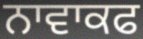
ਨਾਵਾਕਫ